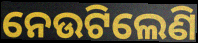
ନେଉଟିଲେଣି